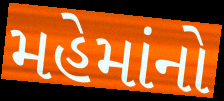
મહેમાંનો